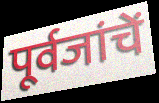
पूर्वजांचें